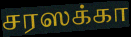
சரஸக்கா